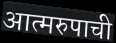
आत्मरुपाची